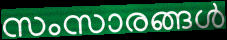
സംസാരങ്ങൾ